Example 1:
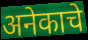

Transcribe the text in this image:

अनेकाचे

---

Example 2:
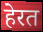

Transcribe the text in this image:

हेरत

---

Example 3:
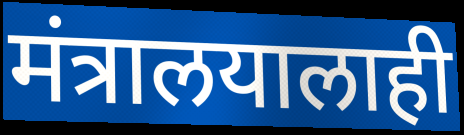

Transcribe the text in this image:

मंत्रालयालाही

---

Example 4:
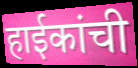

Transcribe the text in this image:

हाईकांची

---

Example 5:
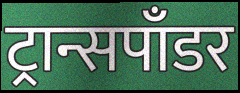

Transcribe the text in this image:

ट्रान्सपाँडर